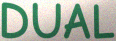
DUAL